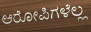
ಆರೋಪಿಗಳೆಲ್ಲ